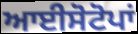
ਆਈਸੋਟੋਪਾਂ